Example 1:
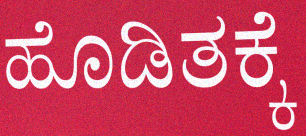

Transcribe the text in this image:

ಹೊಡಿತಕ್ಕೆ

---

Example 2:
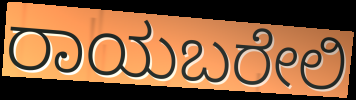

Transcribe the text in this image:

ರಾಯಬರೇಲಿ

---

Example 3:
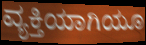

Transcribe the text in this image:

ವ್ಯಕ್ತಿಯಾಗಿಯೂ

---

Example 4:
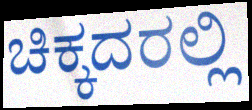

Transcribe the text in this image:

ಚಿಕ್ಕದರಲ್ಲಿ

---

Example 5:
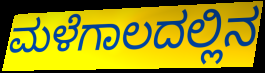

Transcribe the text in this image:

ಮಳೆಗಾಲದಲ್ಲಿನ